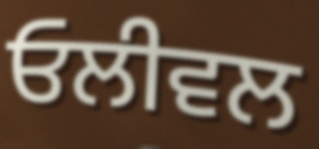
ਓਲੀਵਲ